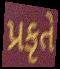
પ્રકૃતે